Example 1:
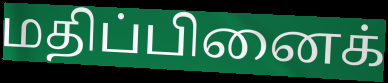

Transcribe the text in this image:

மதிப்பினைக்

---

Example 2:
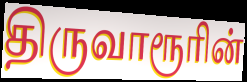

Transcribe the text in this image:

திருவாரூரின்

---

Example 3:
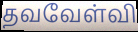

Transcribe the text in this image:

தவவேள்வி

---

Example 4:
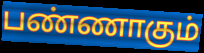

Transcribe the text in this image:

பண்ணாகும்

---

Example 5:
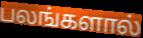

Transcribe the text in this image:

பலங்களால்